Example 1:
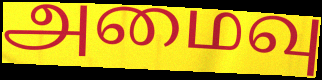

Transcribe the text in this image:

அமைவு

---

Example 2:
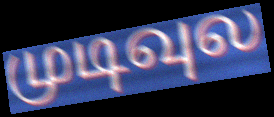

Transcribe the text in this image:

முடிவுல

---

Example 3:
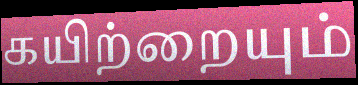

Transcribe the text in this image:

கயிற்றையும்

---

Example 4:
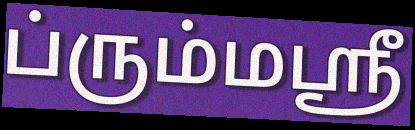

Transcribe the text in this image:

ப்ரும்மஸ்ரீ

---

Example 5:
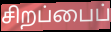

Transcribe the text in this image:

சிறப்பைப்